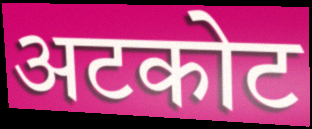
अटकोट